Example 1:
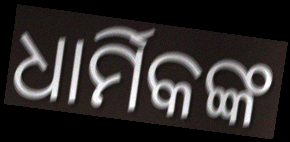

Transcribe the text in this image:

ଧାର୍ମିକଙ୍କ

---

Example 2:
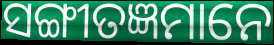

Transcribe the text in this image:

ସଙ୍ଗୀତଜ୍ଞମାନେ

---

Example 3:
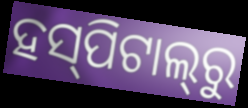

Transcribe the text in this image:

ହସ୍‌ପିଟାଲ୍‌ରୁ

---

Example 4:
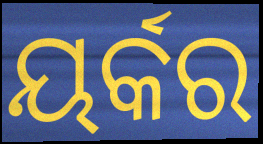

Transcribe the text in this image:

ୟର୍କର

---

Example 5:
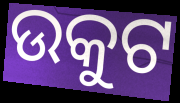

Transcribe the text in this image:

ଉକୁଟ